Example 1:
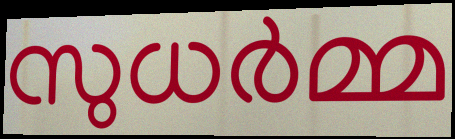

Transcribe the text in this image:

സുധർമ്മ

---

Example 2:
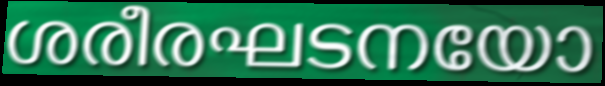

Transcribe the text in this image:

ശരീരഘടനയോ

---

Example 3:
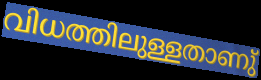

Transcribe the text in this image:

വിധത്തിലുള്ളതാണു്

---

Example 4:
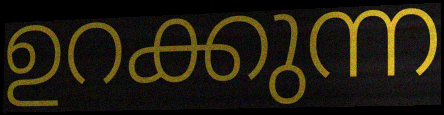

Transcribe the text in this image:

ഉറക്കുന്ന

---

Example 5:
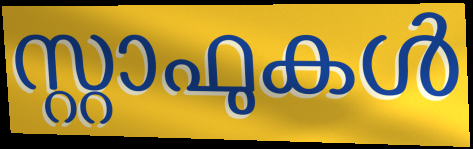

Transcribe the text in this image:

സ്റ്റാഫുകൾ